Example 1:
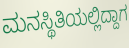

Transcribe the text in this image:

ಮನಸ್ಥಿತಿಯಲ್ಲಿದ್ದಾಗ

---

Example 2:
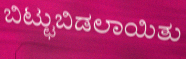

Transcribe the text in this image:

ಬಿಟ್ಟುಬಿಡಲಾಯಿತು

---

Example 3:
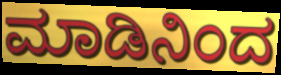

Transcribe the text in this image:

ಮಾಡಿನಿಂದ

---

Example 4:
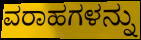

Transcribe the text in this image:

ವರಾಹಗಳನ್ನು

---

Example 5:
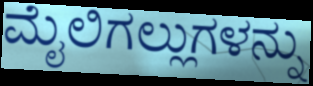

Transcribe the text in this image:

ಮೈಲಿಗಲ್ಲುಗಳನ್ನು